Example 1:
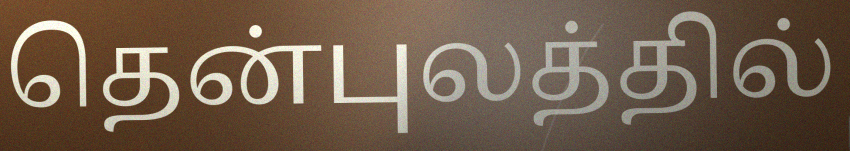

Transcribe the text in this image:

தென்புலத்தில்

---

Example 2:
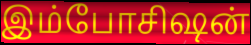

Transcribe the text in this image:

இம்போசிஷன்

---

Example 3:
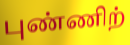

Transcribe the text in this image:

புண்ணிற்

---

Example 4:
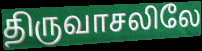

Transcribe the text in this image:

திருவாசலிலே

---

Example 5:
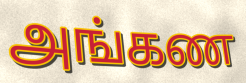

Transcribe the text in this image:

அங்கண